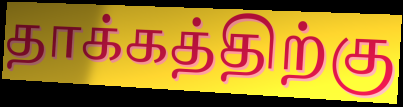
தாக்கத்திற்கு